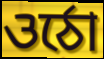
ওঠো